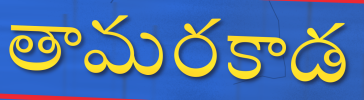
తామరకాడ